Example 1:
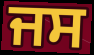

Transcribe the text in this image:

ਜਸ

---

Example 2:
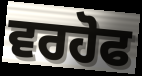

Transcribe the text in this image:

ਵਰਹੋਫ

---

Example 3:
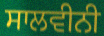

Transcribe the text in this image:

ਸਾਲਵੀਨੀ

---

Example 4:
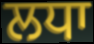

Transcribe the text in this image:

ਲਧਾ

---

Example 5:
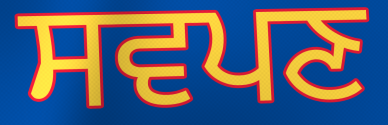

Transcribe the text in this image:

ਸਵਪਣ